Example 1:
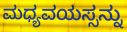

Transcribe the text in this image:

ಮಧ್ಯವಯಸ್ಸನ್ನು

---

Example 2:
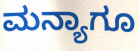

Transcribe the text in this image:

ಮನ್ಯಾಗೂ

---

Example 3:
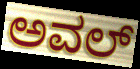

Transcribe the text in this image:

ಅವಲ್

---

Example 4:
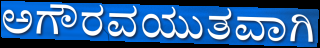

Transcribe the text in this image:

ಅಗೌರವಯುತವಾಗಿ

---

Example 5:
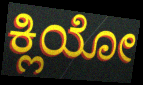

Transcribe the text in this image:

ಕ್ಲಿಯೋ